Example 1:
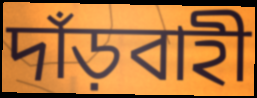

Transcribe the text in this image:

দাঁড়বাহী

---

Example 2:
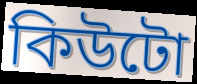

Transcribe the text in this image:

কিউটো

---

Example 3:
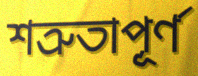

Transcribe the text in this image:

শত্রুতাপূর্ণ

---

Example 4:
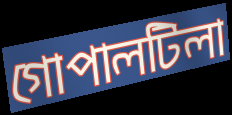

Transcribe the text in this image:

গোপালটিলা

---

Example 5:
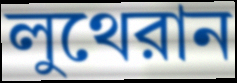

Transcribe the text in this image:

লুথেরান